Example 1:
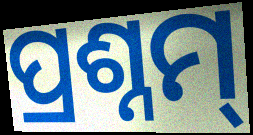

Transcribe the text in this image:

ପ୍ରଶ୍ନମ୍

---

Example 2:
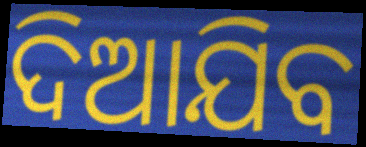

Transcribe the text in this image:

ଦିଆଯିବ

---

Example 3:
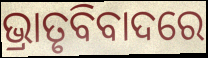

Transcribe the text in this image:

ଭ୍ରାତୃବିବାଦରେ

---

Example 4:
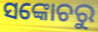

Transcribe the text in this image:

ସଙ୍କୋଚରୁ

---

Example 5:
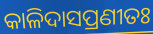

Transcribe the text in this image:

କାଳିଦାସପ୍ରଣୀତଃ